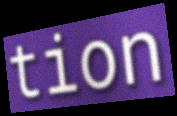
tion